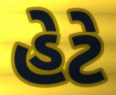
હેટે